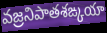
వజ్రనిపాతశఙ్కయా